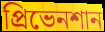
প্রিভেনশান